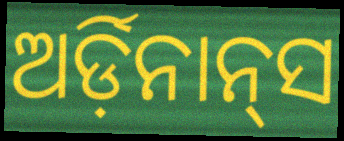
ଅର୍ଡ଼ିନାନ୍‌ସ